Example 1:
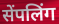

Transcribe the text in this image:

सेंपलिंग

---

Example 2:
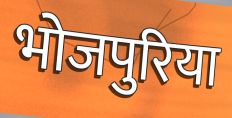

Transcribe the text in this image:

भोजपुरिया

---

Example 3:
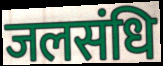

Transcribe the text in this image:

जलसंधि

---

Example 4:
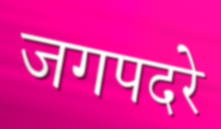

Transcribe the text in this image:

जगपदरे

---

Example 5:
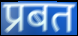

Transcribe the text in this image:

प्रबत